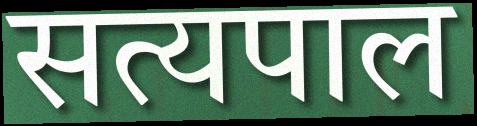
सत्यपाल